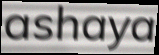
ashaya